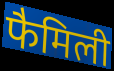
फैमिली